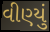
વીણ્યું